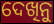
ଦେଖିନୁ